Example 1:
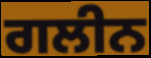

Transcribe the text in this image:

ਗਲੀਨ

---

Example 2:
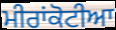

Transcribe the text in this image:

ਮੀਰਾਂਕੋਟੀਆ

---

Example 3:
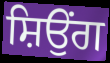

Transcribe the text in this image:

ਸ਼ਿਉਂਗ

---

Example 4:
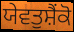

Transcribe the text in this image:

ਯੇਵਤੁਸ਼ੈਂਕੋ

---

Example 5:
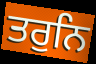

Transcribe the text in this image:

ਤਰੁਨਿ